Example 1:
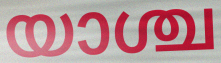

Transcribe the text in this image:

യാശ്ച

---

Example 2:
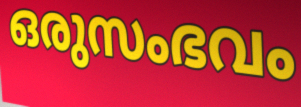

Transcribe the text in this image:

ഒരുസംഭവം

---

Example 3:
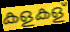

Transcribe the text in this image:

കളകള്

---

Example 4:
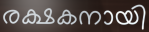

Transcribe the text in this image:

രക്ഷകനായി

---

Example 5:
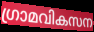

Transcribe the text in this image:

ഗ്രാമവികസന